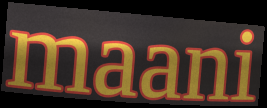
maani